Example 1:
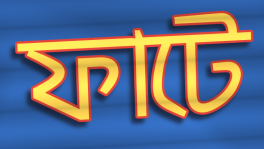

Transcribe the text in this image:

ফাটে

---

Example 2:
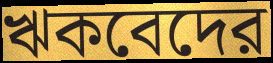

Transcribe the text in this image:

ঋকবেদের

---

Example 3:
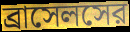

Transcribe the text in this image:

ব্রাসেলসের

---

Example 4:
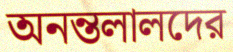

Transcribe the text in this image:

অনন্তলালদের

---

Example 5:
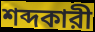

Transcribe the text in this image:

শব্দকারী